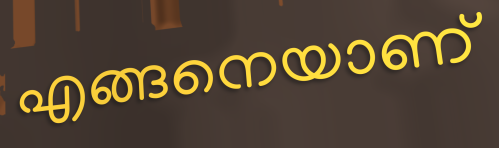
എങ്ങനെയാണ്